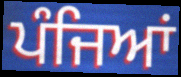
ਪੰਜਿਆਂ